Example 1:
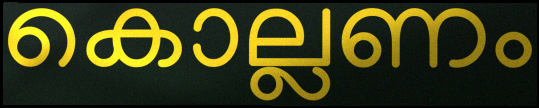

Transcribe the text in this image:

കൊല്ലണം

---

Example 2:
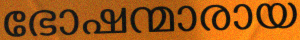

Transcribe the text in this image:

ഭോഷന്മാരായ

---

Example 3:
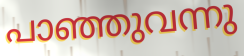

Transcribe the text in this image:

പാഞ്ഞുവന്നു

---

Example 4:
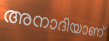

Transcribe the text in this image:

അനാദിയാണ്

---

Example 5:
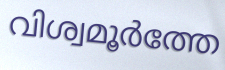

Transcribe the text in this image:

വിശ്വമൂർത്തേ